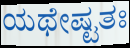
ಯಥೇಷ್ಟತಃ